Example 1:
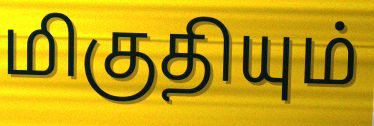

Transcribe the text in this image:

மிகுதியும்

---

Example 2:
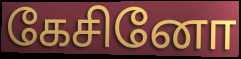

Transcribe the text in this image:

கேசினோ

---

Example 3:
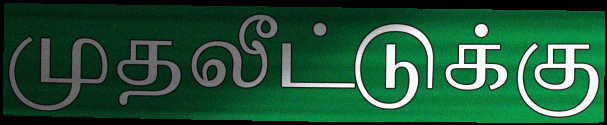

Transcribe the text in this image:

முதலீட்டுக்கு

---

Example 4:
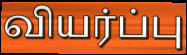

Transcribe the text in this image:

வியர்ப்பு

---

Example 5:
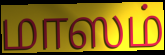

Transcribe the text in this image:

மாஸம்